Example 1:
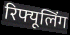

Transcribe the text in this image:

रिफ्यूलिंग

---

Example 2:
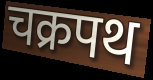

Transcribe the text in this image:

चक्रपथ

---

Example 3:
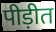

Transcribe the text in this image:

पीड़ीत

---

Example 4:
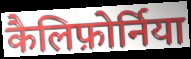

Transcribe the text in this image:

कैलिफ़ोर्निया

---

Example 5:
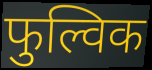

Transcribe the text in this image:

फुल्विक